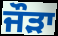
ਜੌੜਾ